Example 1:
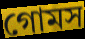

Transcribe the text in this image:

গোমস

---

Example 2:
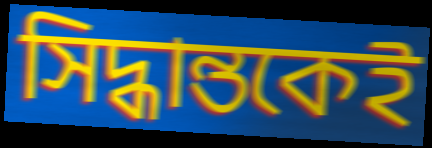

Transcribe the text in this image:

সিদ্ধান্তকেই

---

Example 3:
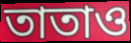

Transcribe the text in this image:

তাতাও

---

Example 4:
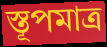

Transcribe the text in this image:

স্তূপমাত্র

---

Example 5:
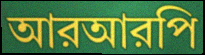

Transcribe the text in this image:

আরআরপি